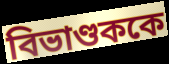
বিভাণ্ডককে